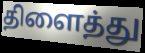
திளைத்து